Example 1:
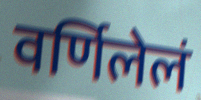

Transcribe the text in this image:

वर्णिलेलं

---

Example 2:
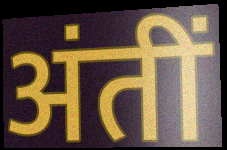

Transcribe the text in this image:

अंतीं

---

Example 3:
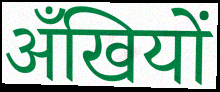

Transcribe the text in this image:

अँखियों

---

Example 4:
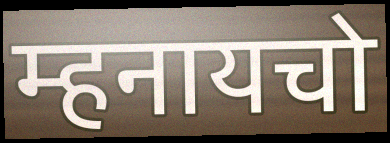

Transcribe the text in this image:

म्हनायचो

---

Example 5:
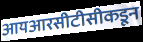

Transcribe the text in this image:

आयआरसीटीसीकडून